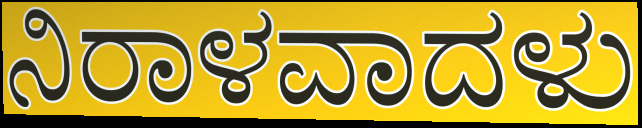
ನಿರಾಳವಾದಳು